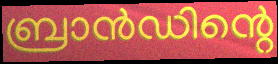
ബ്രാൻഡിന്റെ